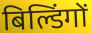
बिल्डिंगों